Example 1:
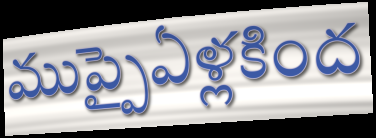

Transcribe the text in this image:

ముప్పైఏళ్లకింద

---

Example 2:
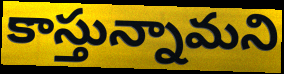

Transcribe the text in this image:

కాస్తున్నామని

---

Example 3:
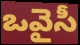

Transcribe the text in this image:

ఒవైసీ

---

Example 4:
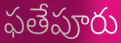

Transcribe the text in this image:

ఫతేపూరు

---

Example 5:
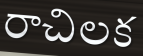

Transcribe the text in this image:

రాచిలక